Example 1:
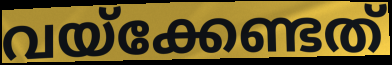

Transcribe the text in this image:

വയ്ക്കേണ്ടത്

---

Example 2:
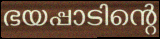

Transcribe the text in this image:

ഭയപ്പാടിന്റെ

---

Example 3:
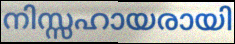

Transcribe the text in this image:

നിസ്സഹായരായി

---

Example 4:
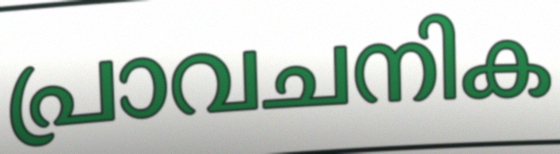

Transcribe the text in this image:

പ്രാവചനിക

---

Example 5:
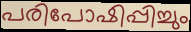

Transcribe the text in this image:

പരിപോഷിപ്പിച്ചും